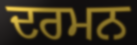
ਦਰਮਨ